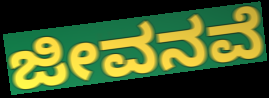
ಜೀವನವೆ